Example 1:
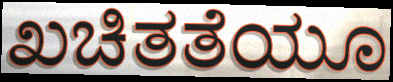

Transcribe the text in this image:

ಖಚಿತತೆಯೂ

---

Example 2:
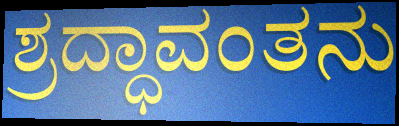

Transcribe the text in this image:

ಶ್ರದ್ಧಾವಂತನು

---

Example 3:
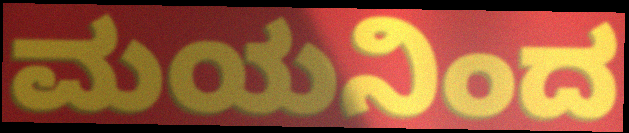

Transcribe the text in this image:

ಮಯನಿಂದ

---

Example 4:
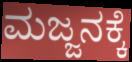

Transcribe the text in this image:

ಮಜ್ಜನಕ್ಕೆ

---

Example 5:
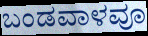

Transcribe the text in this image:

ಬಂಡವಾಳವೂ